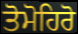
ਤੋਮੋਹਿਰੋ